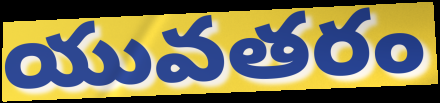
యువతరం